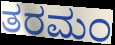
ತರಮಂ